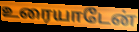
உரையாடேன்